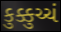
કુક્કુચ્ચં